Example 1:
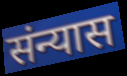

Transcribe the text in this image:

संन्यास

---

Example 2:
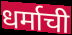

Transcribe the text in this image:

धर्माची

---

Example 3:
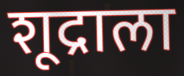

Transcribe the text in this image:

शूद्राला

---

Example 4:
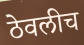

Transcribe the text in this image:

ठेवलीच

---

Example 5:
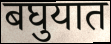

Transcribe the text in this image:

बघुयात